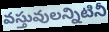
వస్తువులన్నిటినీ